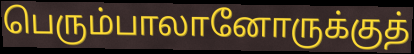
பெரும்பாலானோருக்குத்